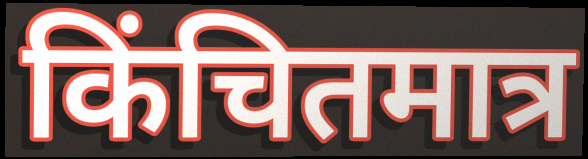
किंचितमात्र